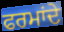
ਫਰਮਾਂਦੇ